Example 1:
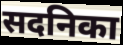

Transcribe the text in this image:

सदनिका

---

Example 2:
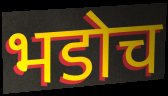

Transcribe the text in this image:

भडोच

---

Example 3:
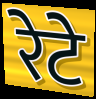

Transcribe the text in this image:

रेटे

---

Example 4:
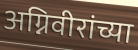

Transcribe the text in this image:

अग्निवीरांच्या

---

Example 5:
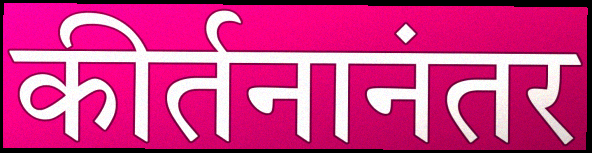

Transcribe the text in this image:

कीर्तनानंतर